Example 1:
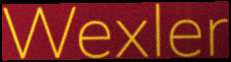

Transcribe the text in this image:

Wexler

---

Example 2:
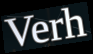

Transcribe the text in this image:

Verh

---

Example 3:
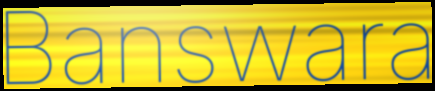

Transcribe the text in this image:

Banswara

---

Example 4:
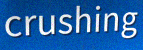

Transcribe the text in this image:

crushing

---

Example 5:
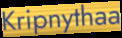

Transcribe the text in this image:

Kripnythaa